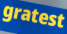
gratest